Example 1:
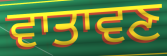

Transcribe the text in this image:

ਵਾਤਾਵਣ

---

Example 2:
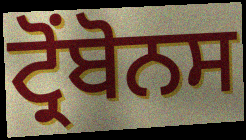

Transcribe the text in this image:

ਟ੍ਰੋਂਬੋਨਸ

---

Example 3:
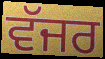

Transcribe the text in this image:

ਵੱਜਰ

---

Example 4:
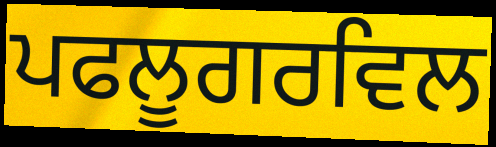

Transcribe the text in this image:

ਪਫਲੂਗਰਵਿਲ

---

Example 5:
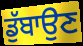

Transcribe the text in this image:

ਡੁੱਬਾਉਣ